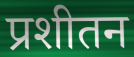
प्रशीतन